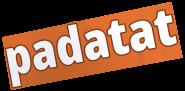
padatat